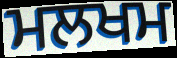
ਮਲਖਮ